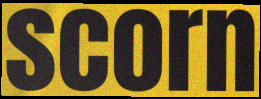
scorn